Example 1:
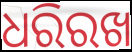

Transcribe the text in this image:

ଧରିରଖ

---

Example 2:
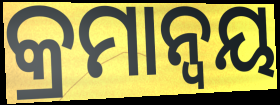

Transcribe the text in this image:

କ୍ରମାନ୍ୱୟ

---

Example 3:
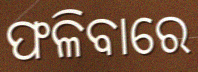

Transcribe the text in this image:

ଫଳିବାରେ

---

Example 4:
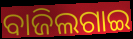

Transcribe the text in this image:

ବାଜିଲଗାଇ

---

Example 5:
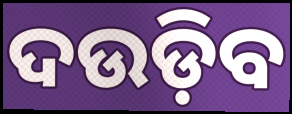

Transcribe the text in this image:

ଦଉଡ଼ିବ